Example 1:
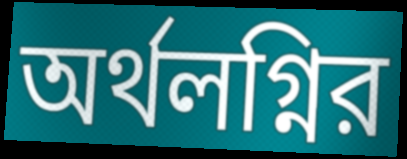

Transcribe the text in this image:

অর্থলগ্নির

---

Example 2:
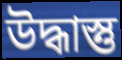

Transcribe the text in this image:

উদ্ধাস্তু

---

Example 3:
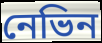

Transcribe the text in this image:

নেভিন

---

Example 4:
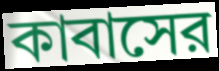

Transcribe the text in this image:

কাবাসের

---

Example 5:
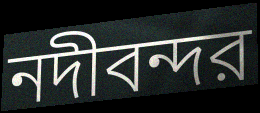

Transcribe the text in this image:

নদীবন্দর